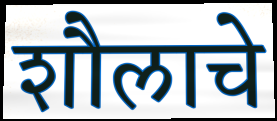
शौलाचे